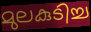
മുലകുടിച്ച